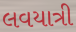
લવયાત્રી